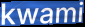
kwami